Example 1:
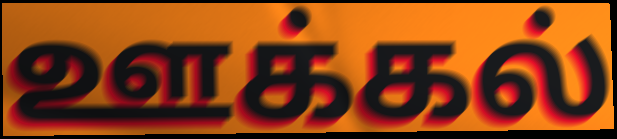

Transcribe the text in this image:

ஊக்கல்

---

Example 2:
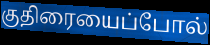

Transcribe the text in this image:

குதிரையைப்போல்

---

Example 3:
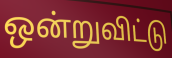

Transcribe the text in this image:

ஒன்றுவிட்டு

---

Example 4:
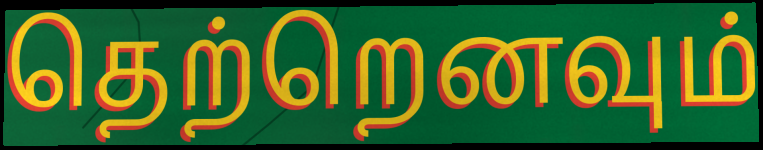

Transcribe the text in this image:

தெற்றெனவும்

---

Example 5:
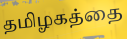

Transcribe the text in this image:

தமிழகத்தை